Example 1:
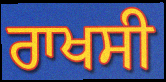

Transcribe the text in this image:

ਰਾਖਸੀ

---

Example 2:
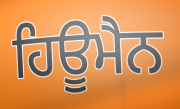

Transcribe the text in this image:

ਹਿਊਮੈਨ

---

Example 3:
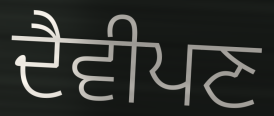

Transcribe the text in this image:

ਦੈਵੀਪਣ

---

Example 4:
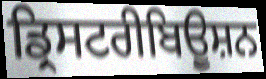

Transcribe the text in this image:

ਡ੍ਰਿਸਟਰੀਬਿਊਸ਼ਨ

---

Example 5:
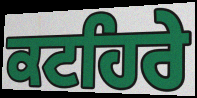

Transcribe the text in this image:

ਕਟਹਿਰੇ